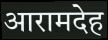
आरामदेह